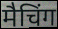
मैचिंग